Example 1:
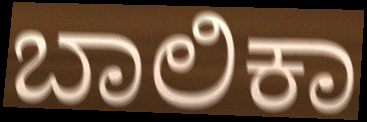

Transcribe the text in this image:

ಬಾಲಿಕಾ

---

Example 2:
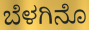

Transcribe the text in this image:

ಬೆಳಗಿನೊ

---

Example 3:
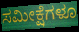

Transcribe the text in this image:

ಸಮೀಕ್ಷೆಗಳೂ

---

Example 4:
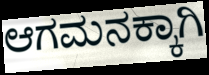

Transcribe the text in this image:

ಆಗಮನಕ್ಕಾಗಿ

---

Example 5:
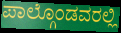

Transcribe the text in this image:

ಪಾಲ್ಗೊಂಡವರಲ್ಲಿ